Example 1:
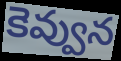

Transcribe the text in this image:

కెవ్వున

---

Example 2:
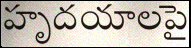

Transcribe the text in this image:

హృదయాలపై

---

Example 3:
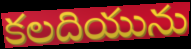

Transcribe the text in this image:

కలదియును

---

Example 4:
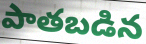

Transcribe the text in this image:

పాతబడిన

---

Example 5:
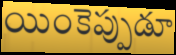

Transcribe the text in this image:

యింకెప్పుడూ